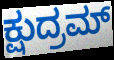
ಕ್ಷುದ್ರಮ್